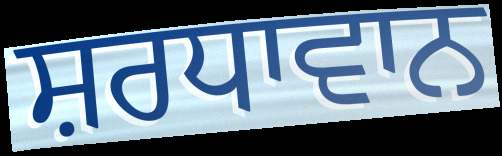
ਸ਼ਰਧਾਵਾਨ